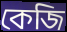
কেজি